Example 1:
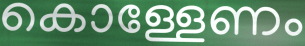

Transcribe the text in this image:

കൊള്ളേണം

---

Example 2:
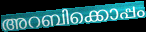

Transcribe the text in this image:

അറബിക്കൊപ്പം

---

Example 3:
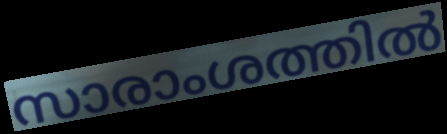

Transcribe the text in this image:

സാരാംശത്തിൽ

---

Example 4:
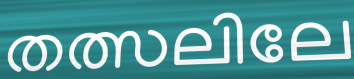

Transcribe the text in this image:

തത്സലിലേ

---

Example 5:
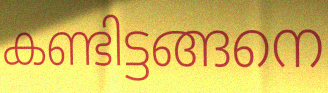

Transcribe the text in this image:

കണ്ടിട്ടങ്ങനെ